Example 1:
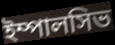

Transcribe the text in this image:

ইম্পালসিভ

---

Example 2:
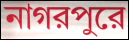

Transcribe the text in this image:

নাগরপুরে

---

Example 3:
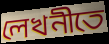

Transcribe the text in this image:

লেখনীতে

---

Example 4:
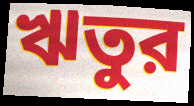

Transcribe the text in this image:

ঋতুর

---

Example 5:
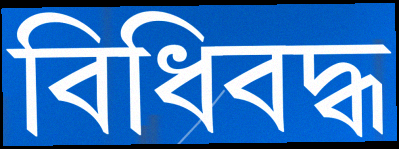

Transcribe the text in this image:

বিধিবদ্ধ